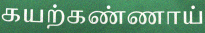
கயற்கண்ணாய்